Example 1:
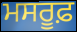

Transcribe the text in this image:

ਮਸਰੂਫ਼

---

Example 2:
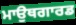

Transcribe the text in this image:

ਮਾਉਥਗਾਰਡ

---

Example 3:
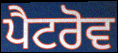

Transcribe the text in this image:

ਪੈਟਰੋਵ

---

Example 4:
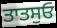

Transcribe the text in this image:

ਤਾਤਸੁਓ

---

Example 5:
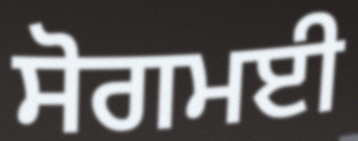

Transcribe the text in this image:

ਸੋਗਮਈ